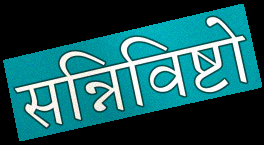
सन्निविष्टो